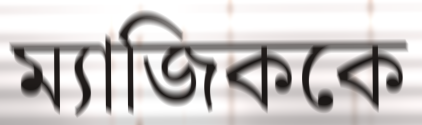
ম্যাজিককে